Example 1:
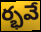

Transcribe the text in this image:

ర్భవే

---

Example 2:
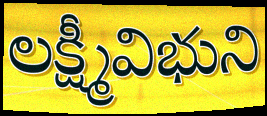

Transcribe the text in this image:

లక్ష్మీవిభుని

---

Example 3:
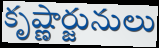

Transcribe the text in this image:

కృష్ణార్జునులు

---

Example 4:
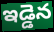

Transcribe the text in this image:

ఇడ్డెన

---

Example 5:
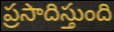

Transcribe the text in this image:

ప్రసాదిస్తుంది